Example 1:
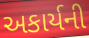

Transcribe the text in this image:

અકાર્યની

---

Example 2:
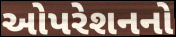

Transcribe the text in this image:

ઓપરેશનનો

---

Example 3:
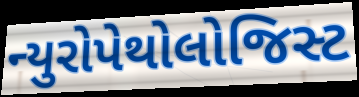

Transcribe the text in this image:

ન્યુરોપેથોલોજિસ્ટ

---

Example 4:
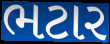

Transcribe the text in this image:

ભટાર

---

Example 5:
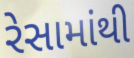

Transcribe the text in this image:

રેસામાંથી